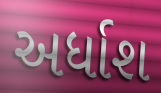
અર્ધાશ